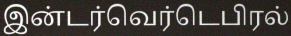
இன்டர்வெர்டெபிரல்